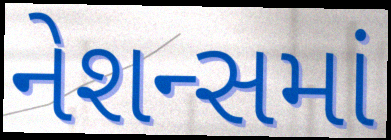
નેશન્સમાં